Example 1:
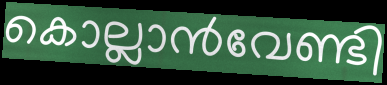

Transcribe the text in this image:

കൊല്ലാൻവേണ്ടി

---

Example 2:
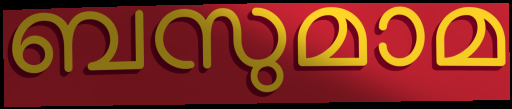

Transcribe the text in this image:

ബസുമാമ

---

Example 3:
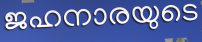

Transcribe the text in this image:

ജഹനാരയുടെ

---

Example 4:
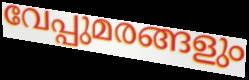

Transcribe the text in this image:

വേപ്പുമരങ്ങളും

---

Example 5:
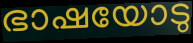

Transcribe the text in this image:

ഭാഷയോടു